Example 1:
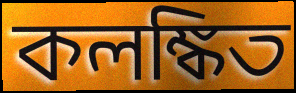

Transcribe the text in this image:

কলঙ্কিত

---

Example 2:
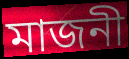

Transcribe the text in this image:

মাজনী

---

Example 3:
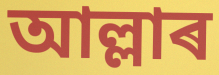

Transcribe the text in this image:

আল্লাৰ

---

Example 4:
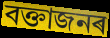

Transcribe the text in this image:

বক্তাজনৰ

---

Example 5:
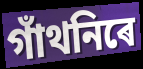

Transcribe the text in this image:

গাঁথনিৰে